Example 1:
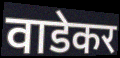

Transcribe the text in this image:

वाडेकर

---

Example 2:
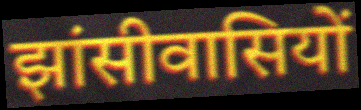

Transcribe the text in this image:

झांसीवासियों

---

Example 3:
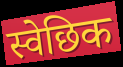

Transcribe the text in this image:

स्वेछिक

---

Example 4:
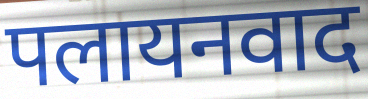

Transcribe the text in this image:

पलायनवाद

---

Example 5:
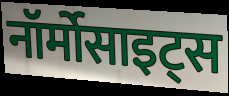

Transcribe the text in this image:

नॉर्मोसाइट्स